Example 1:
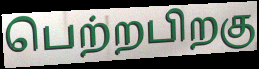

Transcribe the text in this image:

பெற்றபிறகு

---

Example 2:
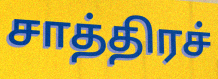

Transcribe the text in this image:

சாத்திரச்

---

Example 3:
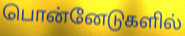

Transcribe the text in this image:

பொன்னேடுகளில்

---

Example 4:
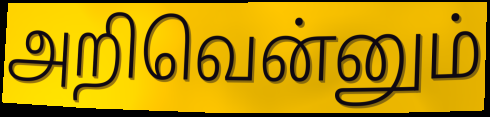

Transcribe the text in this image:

அறிவென்னும்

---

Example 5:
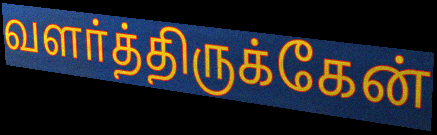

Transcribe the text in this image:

வளர்த்திருக்கேன்